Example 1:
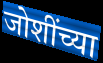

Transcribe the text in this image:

जोशींच्या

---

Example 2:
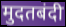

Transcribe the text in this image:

मुदतबंदी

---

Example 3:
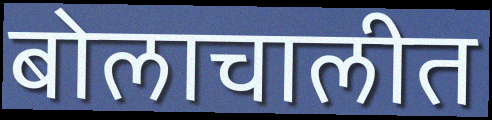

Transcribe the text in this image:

बोलाचालीत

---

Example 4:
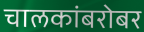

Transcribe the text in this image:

चालकांबरोबर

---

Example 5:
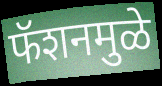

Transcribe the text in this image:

फॅशनमुळे